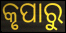
କୃପାରୁ